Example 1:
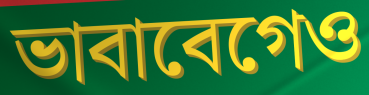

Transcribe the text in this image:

ভাবাবেগেও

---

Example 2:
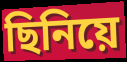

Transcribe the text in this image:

ছিনিয়ে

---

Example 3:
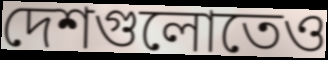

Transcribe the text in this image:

দেশগুলোতেও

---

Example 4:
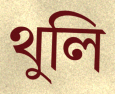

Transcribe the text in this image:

থুলি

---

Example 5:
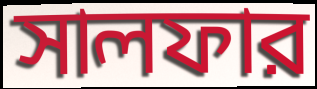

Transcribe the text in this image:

সালফার